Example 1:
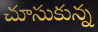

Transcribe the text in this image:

చూసుకున్న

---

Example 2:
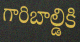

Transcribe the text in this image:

గారిబాల్డికి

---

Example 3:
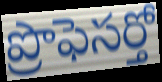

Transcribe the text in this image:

ప్రొఫెసర్తో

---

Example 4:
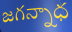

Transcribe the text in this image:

జగన్నాధ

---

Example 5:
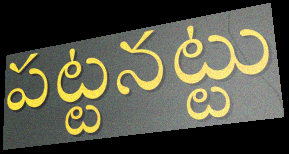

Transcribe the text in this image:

పట్టనట్టు